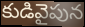
కుడివైపున